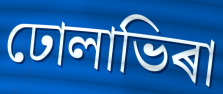
ঢোলাভিৰা